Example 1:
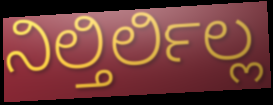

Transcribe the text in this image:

ನಿಲ್ತಿರ್ಲಿಲ್ಲ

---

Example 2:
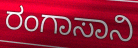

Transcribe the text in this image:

ರಂಗಾಸಾನಿ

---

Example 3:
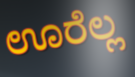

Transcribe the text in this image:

ಊರೆಲ್ಲ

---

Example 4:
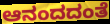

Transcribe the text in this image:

ಆನಂದದಂತೆ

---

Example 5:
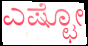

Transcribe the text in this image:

ಎಷ್ಟೋ